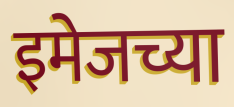
इमेजच्या